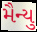
મૈન્યુ